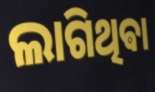
ଲାଗିଥିଵା